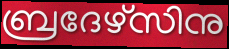
ബ്രദേഴ്സിനു